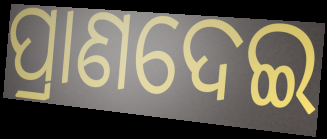
ପ୍ରାଣଦେଇ